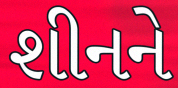
શીનને